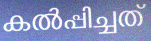
കൽപ്പിച്ചത്